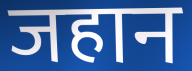
जहान